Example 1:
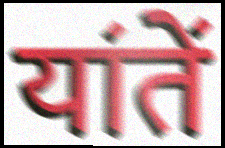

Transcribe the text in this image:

यांतें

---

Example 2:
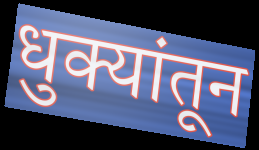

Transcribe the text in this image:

धुक्यांतून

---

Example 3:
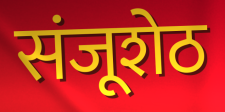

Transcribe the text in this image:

संजूशेठ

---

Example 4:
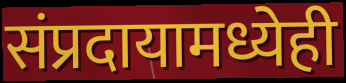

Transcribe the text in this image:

संप्रदायामध्येही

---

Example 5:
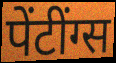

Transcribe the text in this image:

पेंटींग्स